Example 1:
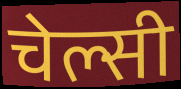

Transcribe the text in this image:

चेल्सी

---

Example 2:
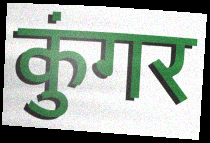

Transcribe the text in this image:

कुंगर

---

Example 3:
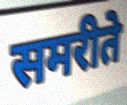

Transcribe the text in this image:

समरीते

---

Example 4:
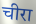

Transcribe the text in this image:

चीरा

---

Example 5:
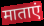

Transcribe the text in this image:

माताएं